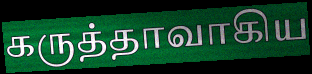
கருத்தாவாகிய